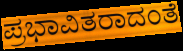
ಪ್ರಭಾವಿತರಾದಂತೆ